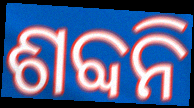
ଶବ୍ଦନି